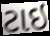
ટાઇ